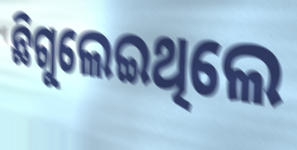
ଛିଗୁଲେଇଥିଲେ